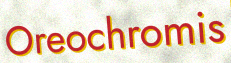
Oreochromis